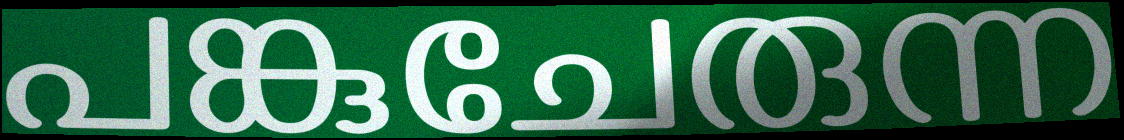
പങ്കുചേരുന്ന